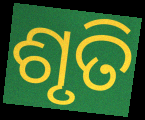
ଶୃତି